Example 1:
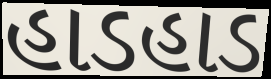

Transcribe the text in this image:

હાડહાડ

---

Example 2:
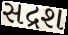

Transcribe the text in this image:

સદ્રશ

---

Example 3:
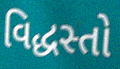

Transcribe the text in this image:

વિદ્ધસ્તો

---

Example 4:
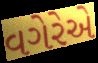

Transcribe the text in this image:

વગેરેએ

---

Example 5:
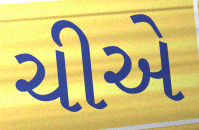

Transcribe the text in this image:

ચીએ